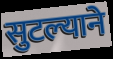
सुटल्याने